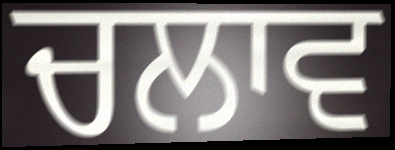
ਚਲਾਵ